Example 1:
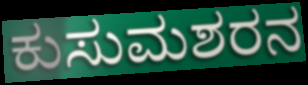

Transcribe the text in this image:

ಕುಸುಮಶರನ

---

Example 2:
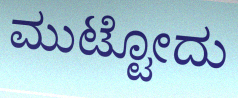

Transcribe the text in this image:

ಮುಟ್ಟೋದು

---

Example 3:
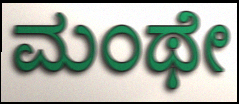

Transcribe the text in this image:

ಮಂಥೇ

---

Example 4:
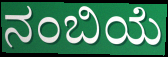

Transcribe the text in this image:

ನಂಬಿಯೆ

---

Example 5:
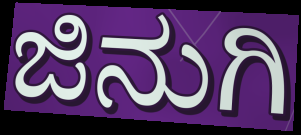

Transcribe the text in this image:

ಜಿನುಗಿ